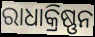
ରାଧାକ୍ରିଷ୍ଣନ